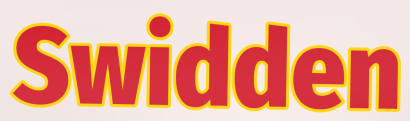
Swidden